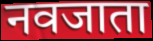
नवजाता